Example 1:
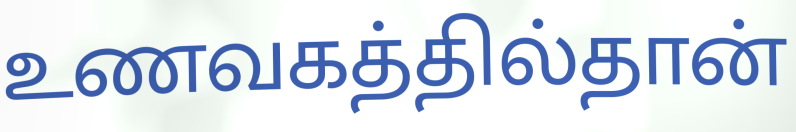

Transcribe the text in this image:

உணவகத்தில்தான்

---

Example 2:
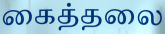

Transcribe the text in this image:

கைத்தலை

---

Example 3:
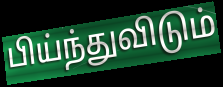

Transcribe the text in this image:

பிய்ந்துவிடும்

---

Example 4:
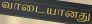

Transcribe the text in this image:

வாடையானது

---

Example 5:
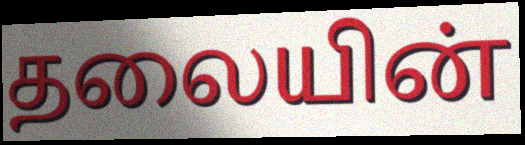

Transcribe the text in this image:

தலையின்